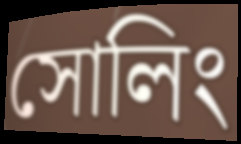
সোলিং